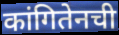
कांगितेनची